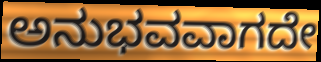
ಅನುಭವವಾಗದೇ